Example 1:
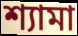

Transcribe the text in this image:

শ্যামা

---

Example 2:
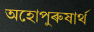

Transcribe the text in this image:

অহোপুৰুষাৰ্থ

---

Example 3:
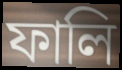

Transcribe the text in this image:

ফালি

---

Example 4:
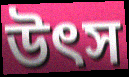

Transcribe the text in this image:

উৎস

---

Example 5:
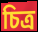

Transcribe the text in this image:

চিত্ৰ